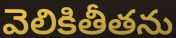
వెలికితీతను